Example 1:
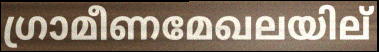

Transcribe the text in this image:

ഗ്രാമീണമേഖലയില്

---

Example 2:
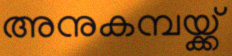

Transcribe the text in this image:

അനുകമ്പയ്ക്ക്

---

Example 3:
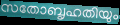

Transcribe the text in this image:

സതോബൃഹതിയും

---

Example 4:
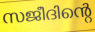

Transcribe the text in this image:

സജീദിന്റെ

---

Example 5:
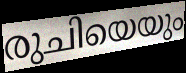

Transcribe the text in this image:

രുചിയെയും